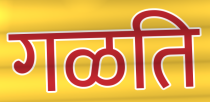
गळति